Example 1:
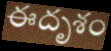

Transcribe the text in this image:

ఈదృశం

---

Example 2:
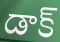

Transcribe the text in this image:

డాక్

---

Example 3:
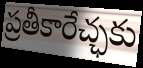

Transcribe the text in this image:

ప్రతీకారేచ్ఛకు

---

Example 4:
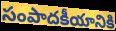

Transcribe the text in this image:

సంపాదకీయానికి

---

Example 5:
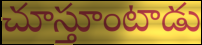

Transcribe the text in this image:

చూస్తూంటాడు